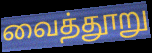
வைத்தூறு